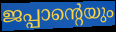
ജപ്പാന്റെയും